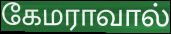
கேமராவால்